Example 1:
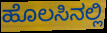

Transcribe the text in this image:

ಹೊಲಸಿನಲ್ಲಿ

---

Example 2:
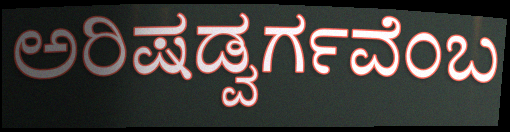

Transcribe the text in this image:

ಅರಿಷಡ್ವರ್ಗವೆಂಬ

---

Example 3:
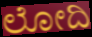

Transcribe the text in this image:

ಲೋದಿ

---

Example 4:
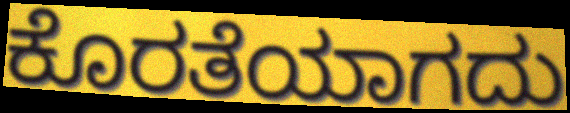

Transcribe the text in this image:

ಕೊರತೆಯಾಗದು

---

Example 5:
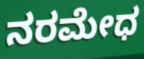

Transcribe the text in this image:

ನರಮೇಧ